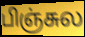
பிஞ்சுல